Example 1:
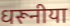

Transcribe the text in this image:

धरूनीया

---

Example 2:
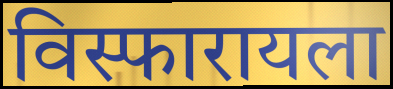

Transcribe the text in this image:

विस्फारायला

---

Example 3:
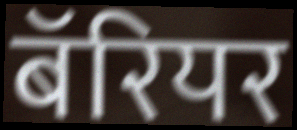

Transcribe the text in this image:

बॅरियर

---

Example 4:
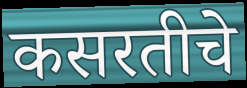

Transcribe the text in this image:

कसरतीचे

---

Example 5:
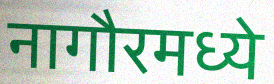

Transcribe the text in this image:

नागौरमध्ये